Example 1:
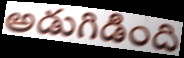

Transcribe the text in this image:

అడుగిడింది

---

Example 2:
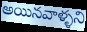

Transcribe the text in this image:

అయినవాళ్ళని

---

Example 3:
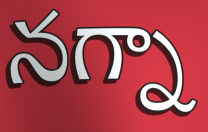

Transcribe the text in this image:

నగ్నా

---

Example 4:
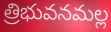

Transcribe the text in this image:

త్రిభువనమల్ల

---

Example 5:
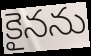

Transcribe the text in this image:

కైనను